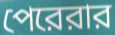
পেরেরার